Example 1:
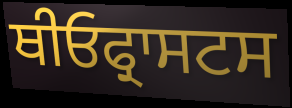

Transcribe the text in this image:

ਥੀਓਫ੍ਰਾਸਟਸ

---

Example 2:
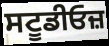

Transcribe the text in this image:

ਸਟੂਡੀਓਜ਼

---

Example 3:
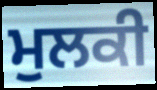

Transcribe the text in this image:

ਮੁਲਕੀ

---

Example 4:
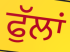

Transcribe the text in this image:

ਫੁੱਲਾਂ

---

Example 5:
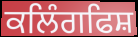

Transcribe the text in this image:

ਕਲਿੰਗਫਿਸ਼